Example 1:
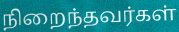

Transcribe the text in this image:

நிறைந்தவர்கள்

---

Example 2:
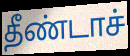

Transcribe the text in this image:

தீண்டாச்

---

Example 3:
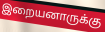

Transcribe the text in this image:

இறையனாருக்கு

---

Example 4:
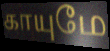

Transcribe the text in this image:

காயுமே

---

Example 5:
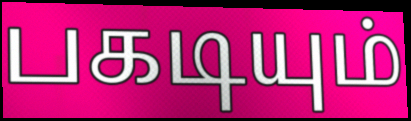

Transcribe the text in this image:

பகடியும்